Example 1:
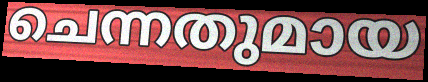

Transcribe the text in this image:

ചെന്നതുമായ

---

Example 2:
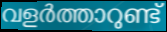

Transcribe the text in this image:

വളർത്താറുണ്ട്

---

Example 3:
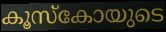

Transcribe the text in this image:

കൂസ്കോയുടെ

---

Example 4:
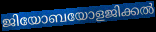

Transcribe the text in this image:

ജിയോബയോളജിക്കൽ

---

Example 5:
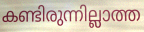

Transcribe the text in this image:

കണ്ടിരുന്നില്ലാത്ത